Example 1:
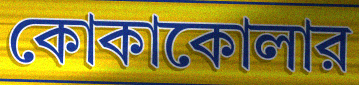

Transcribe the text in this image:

কোকাকোলার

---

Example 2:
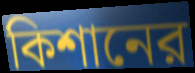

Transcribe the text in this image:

কিশানের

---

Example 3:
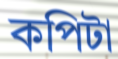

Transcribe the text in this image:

কপিটা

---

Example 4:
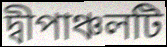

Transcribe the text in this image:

দ্বীপাঞ্চলটি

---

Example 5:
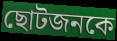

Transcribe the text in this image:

ছোটজনকে